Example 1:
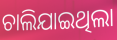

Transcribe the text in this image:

ଚାଲିଯାଇଥିଲା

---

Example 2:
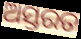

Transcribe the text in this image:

ଅସ୍ତରତ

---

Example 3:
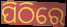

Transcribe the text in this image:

ପିଠିରେ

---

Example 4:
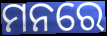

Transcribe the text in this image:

ମନରେ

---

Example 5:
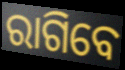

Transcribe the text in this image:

ରାଗିବେ